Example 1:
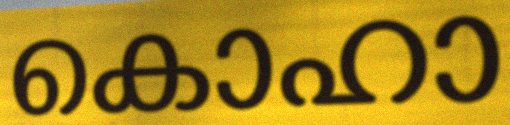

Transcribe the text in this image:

കൊഹാ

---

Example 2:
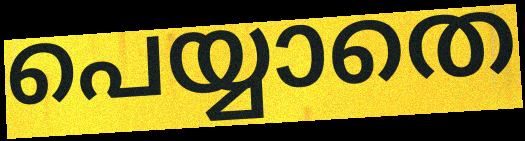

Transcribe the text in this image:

പെയ്യാതെ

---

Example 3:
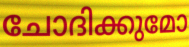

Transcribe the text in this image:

ചോദിക്കുമോ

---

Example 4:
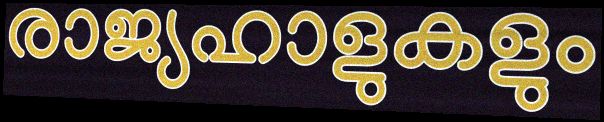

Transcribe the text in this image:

രാജ്യഹാളുകളും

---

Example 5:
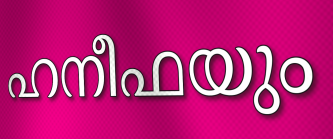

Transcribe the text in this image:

ഹനീഫയും